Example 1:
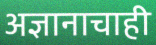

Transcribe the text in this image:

अज्ञानाचाही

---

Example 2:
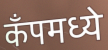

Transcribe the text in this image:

कॅंपमध्ये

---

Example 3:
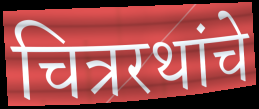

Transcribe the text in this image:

चित्ररथांचे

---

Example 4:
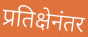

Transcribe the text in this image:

प्रतिक्षेनंतर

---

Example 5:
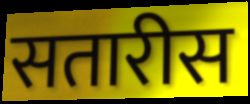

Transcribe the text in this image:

सतारीस